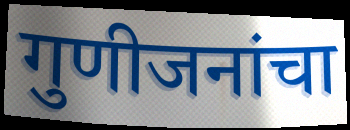
गुणीजनांचा